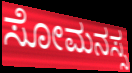
ಸೋಮನಸ್ಸ